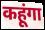
कहूंगा